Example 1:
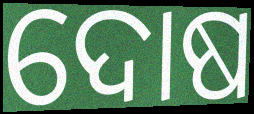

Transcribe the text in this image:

ଦୋଷ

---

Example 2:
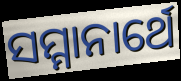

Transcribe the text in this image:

ସମ୍ମାନାର୍ଥେ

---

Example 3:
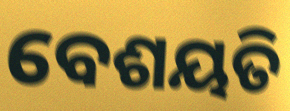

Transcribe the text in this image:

ବେଶୟତି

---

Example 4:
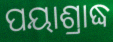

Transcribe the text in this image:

ପୟାଶ୍ରାଦ୍ଧ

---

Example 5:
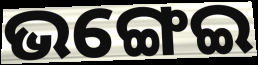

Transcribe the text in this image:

ଭଙ୍ଗେଇ